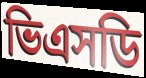
ভিএসডি